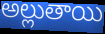
అల్లుతాయి